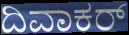
ದಿವಾಕರ್